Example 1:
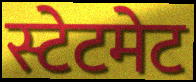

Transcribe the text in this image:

स्टेटमेट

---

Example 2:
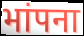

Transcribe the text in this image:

भांपना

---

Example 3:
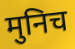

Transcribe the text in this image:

मुनिच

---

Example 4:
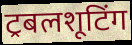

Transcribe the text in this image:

ट्रबलशूटिंग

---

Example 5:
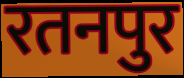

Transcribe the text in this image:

रतनपुर